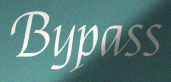
Bypass